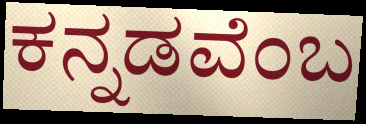
ಕನ್ನಡವೆಂಬ